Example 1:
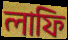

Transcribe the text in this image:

লাফি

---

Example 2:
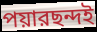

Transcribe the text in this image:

পয়ারছন্দই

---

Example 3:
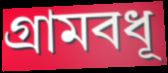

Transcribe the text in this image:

গ্রামবধূ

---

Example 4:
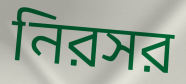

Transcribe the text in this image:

নিরসর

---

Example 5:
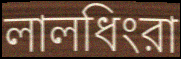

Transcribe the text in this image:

লালধিংরা